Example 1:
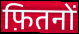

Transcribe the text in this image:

फ़ितनों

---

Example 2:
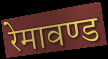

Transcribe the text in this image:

रेमावण्ड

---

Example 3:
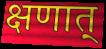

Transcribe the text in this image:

क्षणात्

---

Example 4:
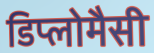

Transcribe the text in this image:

डिप्लोमैसी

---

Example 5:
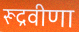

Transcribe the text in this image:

रूद्रवीणा